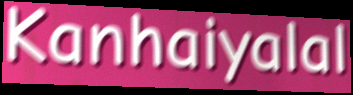
Kanhaiyalal